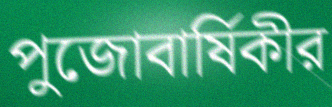
পুজোবার্ষিকীর